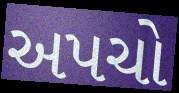
અપચો